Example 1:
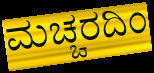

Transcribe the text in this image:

ಮಚ್ಚರದಿಂ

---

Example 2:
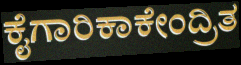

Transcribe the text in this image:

ಕೈಗಾರಿಕಾಕೇಂದ್ರಿತ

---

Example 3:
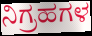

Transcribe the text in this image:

ನಿಗ್ರಹಗಳ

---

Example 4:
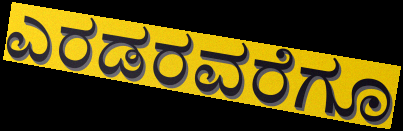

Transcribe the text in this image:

ಎರಡರವರೆಗೂ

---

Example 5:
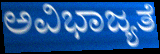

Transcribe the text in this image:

ಅವಿಭಾಜ್ಯತೆ